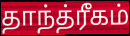
தாந்த்ரீகம்